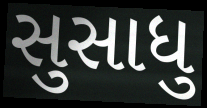
સુસાધુ